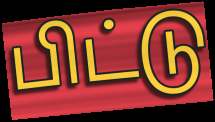
பிட்டு